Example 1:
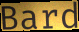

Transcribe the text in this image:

Bard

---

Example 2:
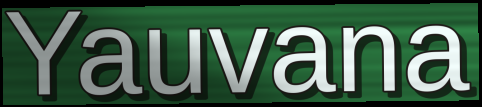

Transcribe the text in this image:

Yauvana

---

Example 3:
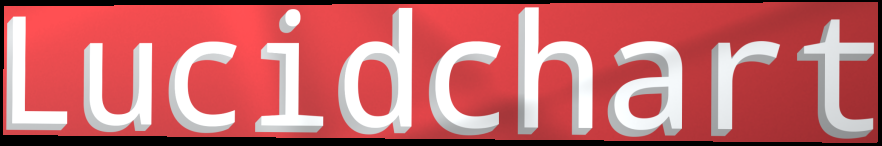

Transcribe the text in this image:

Lucidchart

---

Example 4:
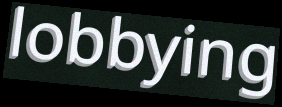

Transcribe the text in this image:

lobbying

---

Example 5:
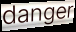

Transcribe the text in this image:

danger